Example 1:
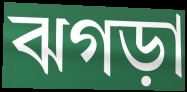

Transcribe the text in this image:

ঝগড়া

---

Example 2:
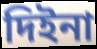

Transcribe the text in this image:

দিইনা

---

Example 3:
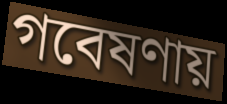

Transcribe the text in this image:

গবেষণায়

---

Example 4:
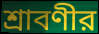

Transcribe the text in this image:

শ্রাবণীর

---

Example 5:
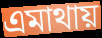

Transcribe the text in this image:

এমাথায়